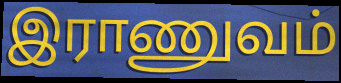
இராணுவம்